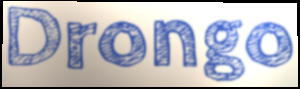
Drongo